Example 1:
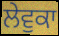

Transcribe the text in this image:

ਲੇਵੁਕਾ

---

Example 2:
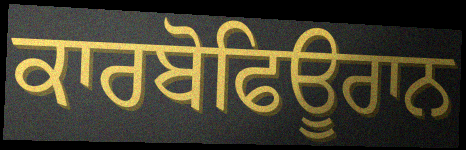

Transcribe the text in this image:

ਕਾਰਬੋਫਿਊਰਾਨ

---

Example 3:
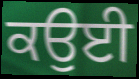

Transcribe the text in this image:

ਕਉਈ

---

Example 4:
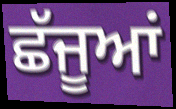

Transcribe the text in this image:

ਛੱਜੂਆਂ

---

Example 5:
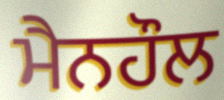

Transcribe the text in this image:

ਮੈਨਹੌਲ